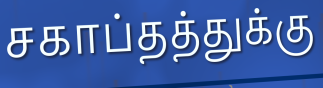
சகாப்தத்துக்கு